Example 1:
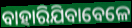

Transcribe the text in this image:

ବାହାରିଯିବାବେଳେ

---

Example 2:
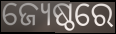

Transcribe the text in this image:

ଜ୍ୟେଷ୍ଠରେ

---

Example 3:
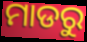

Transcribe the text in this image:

ମାଡରୁ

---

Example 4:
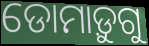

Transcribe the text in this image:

ଡୋମାଡ଼ୁଗୁ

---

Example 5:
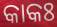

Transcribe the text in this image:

କାକଃ